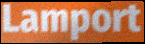
Lamport